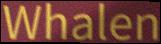
Whalen